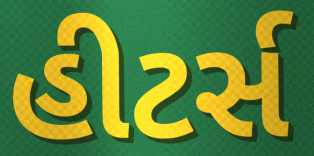
હીટર્સ